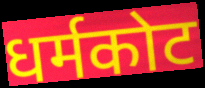
धर्मकोट